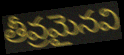
తీవ్రమైనవి